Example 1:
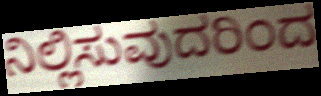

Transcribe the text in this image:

ನಿಲ್ಲಿಸುವುದರಿಂದ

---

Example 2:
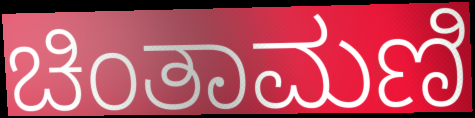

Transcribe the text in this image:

ಚಿಂತಾಮಣಿ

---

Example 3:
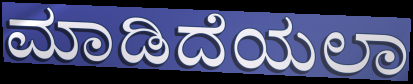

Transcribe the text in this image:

ಮಾಡಿದೆಯಲಾ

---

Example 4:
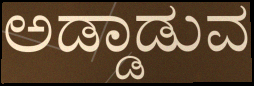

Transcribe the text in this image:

ಅಡ್ಡಾಡುವ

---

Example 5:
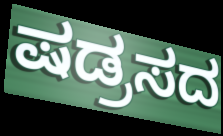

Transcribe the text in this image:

ಷಡ್ರಸದ